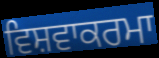
ਵਿਸ਼ਵਾਕਰਮਾ